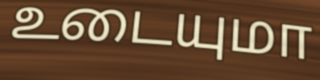
உடையுமா